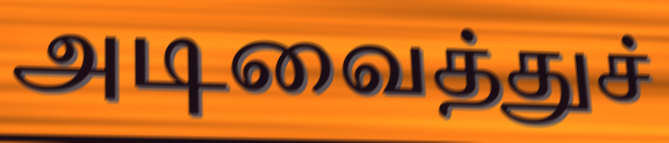
அடிவைத்துச்